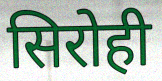
सिरोही